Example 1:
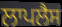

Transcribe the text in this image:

ਲਾਪਲੈਸ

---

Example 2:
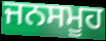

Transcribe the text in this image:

ਜਨਸਮੂਹ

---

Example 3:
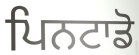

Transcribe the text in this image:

ਪਿਨਟਾਡੋ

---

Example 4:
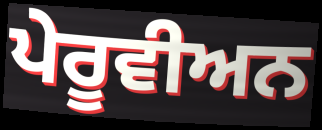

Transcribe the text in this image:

ਪੇਰੂਵੀਅਨ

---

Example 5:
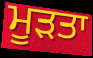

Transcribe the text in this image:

ਮੂੜਤਾ